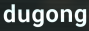
dugong